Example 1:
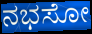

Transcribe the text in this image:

ನಭಸೋ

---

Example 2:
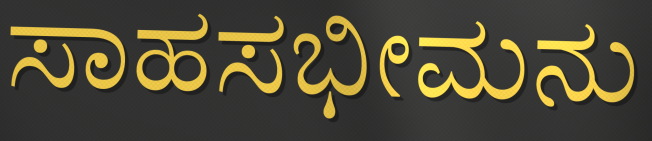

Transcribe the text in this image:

ಸಾಹಸಭೀಮನು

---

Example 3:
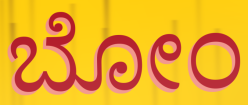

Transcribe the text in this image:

ಬೋಂ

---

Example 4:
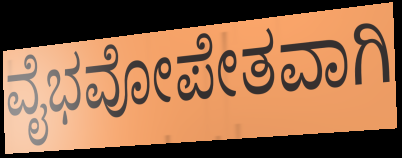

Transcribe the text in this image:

ವೈಭವೋಪೇತವಾಗಿ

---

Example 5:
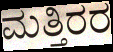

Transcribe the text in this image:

ಮತ್ತಿರರ